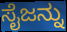
ಸೈಜನ್ನು